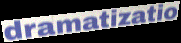
dramatizatio